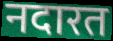
नदारत